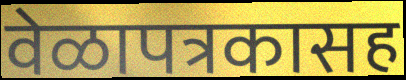
वेळापत्रकासह